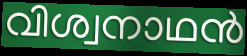
വിശ്വനാഥൻ